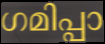
ഗമിപ്പാ